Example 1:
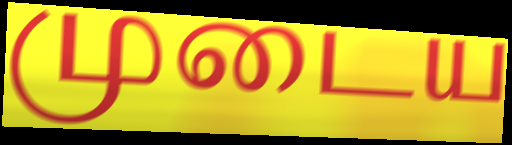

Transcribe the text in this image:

முடைய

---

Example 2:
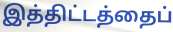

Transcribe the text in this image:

இத்திட்டத்தைப்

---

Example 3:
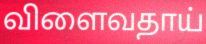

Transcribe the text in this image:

விளைவதாய்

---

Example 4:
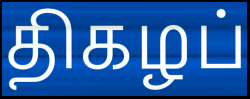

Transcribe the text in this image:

திகழப்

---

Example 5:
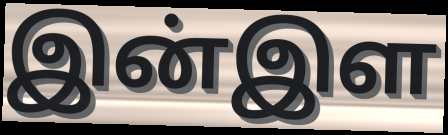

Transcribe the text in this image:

இன்இள